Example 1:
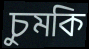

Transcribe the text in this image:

চুমকি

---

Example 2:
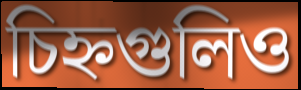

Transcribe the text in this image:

চিহ্নগুলিও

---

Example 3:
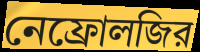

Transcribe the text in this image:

নেফ্রোলজির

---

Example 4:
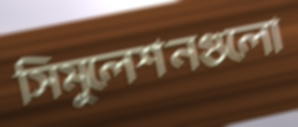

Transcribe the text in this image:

সিমুলেশনগুলো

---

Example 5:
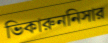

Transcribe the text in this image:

ভিকারুননিসার